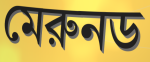
মেরুনড